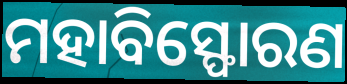
ମହାବିସ୍ଫୋରଣ